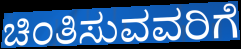
ಚಿಂತಿಸುವವರಿಗೆ